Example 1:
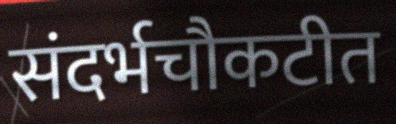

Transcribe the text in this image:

संदर्भचौकटीत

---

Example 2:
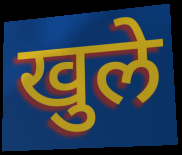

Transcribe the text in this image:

खुले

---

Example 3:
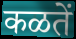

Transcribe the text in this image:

कळतें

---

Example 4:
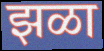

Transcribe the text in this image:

झळा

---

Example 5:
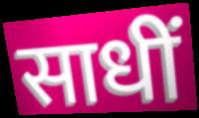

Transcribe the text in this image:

साधीं